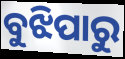
ବୁଝିପାରୁ